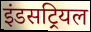
इंडसट्रियल